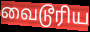
வைடூரிய